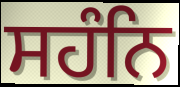
ਸਹੰਨਿ